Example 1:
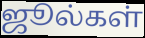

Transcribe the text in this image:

ஜூல்கள்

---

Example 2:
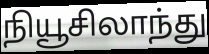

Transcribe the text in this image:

நியூசிலாந்து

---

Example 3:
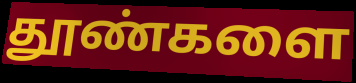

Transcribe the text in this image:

தூண்களை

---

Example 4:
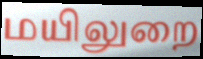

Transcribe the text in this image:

மயிலுறை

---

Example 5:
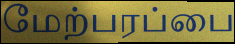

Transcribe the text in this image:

மேற்பரப்பை